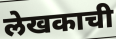
लेखकाची